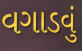
વગાડવું